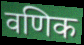
वणिक